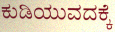
ಕುಡಿಯುವದಕ್ಕೆ